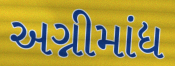
અગ્નીમાંદ્ય